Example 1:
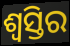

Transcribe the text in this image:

ଶ୍ୱସ୍ତିର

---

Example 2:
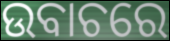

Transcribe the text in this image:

ଉବାଚରେ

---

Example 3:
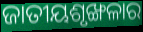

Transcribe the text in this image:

ଜାତୀୟଶୃଙ୍ଖଳାର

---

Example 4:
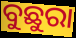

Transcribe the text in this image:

ବୁଛୁରା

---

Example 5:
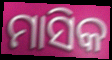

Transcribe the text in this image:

ମାସିକ